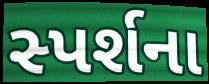
સ્પર્શના